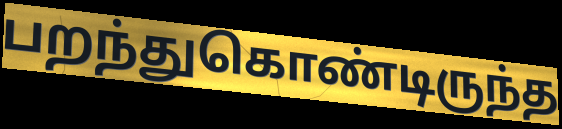
பறந்துகொண்டிருந்த